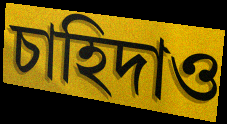
চাহিদাও